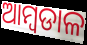
ଆମ୍ବଡାଳ